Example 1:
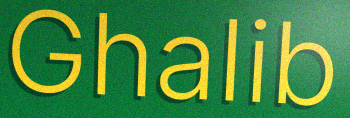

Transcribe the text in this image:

Ghalib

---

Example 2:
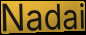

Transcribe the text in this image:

Nadai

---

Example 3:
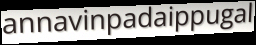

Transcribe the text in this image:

annavinpadaippugal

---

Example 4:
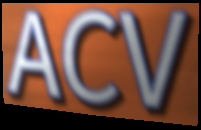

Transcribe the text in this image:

ACV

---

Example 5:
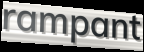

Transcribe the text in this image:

rampant